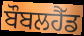
ਬੌਬਲਹੈੱਡ